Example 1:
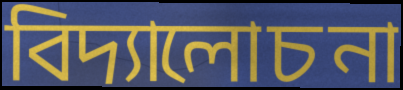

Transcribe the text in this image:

বিদ্যালোচনা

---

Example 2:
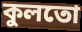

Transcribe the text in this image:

কুলতো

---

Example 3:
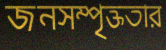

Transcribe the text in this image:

জনসম্পৃক্ততার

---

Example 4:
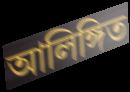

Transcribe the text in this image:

আলিঙ্গিত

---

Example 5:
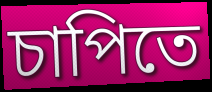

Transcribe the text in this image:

চাপিতে